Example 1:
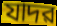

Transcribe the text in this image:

যাদৱ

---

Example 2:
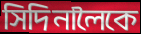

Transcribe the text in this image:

সিদিনালৈকে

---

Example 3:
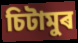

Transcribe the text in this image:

চিটামুৰ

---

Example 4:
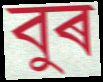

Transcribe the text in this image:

বুৰ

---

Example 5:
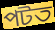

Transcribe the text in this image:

পটত